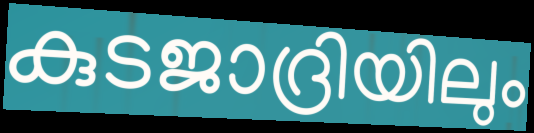
കുടജാദ്രിയിലും